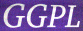
GGPL